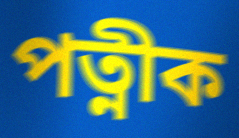
পত্নীক